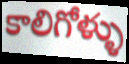
కాలిగోళ్ళు